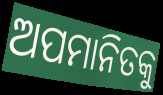
ଅପମାନିତକୁ